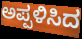
ಅಪ್ಪಳಿಸಿದ